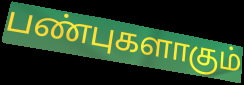
பண்புகளாகும்